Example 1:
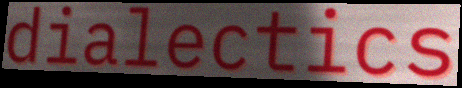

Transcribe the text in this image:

dialectics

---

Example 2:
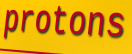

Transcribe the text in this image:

protons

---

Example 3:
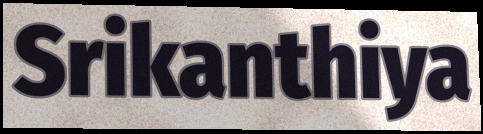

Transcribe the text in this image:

Srikanthiya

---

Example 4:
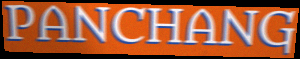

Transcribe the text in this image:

PANCHANG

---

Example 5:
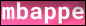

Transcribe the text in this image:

mbappe